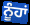
ਨੂੰਹਾਂ